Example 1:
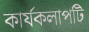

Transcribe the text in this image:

কার্যকলাপটি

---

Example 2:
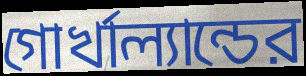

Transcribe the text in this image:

গোর্খাল্যান্ডের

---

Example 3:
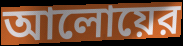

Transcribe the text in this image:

আলোয়ের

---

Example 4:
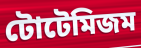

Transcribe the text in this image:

টোটেমিজম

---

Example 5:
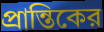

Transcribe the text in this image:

প্রান্তিকের